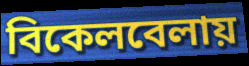
বিকেলবেলায়